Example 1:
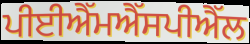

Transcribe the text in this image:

ਪੀਈਐੱਮਐੱਸਪੀਐੱਲ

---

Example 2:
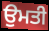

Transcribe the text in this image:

ਉਮਤੀ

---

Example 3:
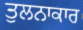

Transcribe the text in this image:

ਤੁਲਨਾਕਾਰ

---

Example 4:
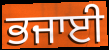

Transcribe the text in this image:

ਭਜਾਈ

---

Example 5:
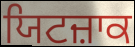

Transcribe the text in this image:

ਯਿਟਜ਼ਾਕ